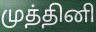
முத்தினி